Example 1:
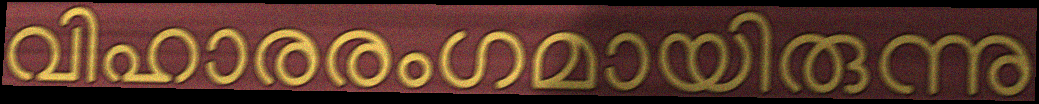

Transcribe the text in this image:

വിഹാരരംഗമായിരുന്നു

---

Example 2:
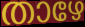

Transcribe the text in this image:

താഴേ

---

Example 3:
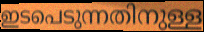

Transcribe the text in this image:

ഇടപെടുന്നതിനുള്ള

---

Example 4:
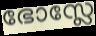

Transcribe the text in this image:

ഭോസ്ലേ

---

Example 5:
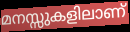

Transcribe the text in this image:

മനസ്സുകളിലാണ്